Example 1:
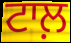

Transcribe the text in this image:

ਟਾਲ਼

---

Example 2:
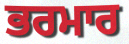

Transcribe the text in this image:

ਭਰਮਾਰ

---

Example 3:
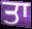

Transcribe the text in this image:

ਤਾ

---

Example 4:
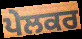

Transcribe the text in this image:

ਪੇਲਕਰ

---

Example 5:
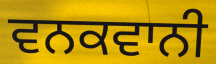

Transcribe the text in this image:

ਵਨਕਵਾਨੀ